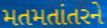
મતમતાંતરને